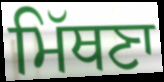
ਮਿੱਥਣਾ